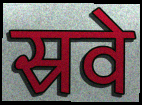
स्रवे